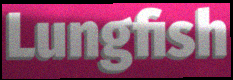
Lungfish